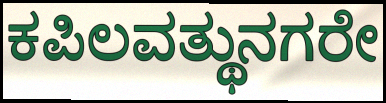
ಕಪಿಲವತ್ಥುನಗರೇ